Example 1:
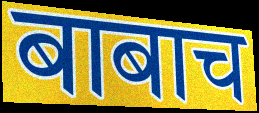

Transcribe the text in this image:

बाबाच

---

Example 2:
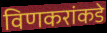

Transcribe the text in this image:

विणकरांकडे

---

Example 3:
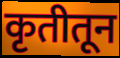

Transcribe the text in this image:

कृतीतून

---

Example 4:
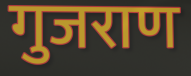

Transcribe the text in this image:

गुजराण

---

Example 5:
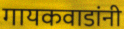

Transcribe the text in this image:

गायकवाडांनी